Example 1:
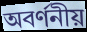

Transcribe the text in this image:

অবর্ণনীয়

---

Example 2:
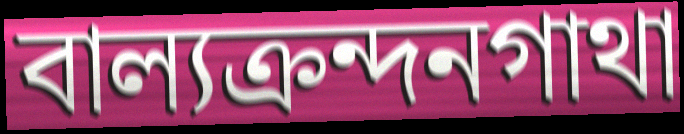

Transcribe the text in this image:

বাল্যক্রন্দনগাথা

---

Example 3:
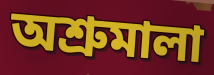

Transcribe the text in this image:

অশ্রুমালা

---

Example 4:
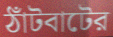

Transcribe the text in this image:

ঠাঁটবাটের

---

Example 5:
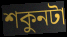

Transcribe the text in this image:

শকুনটা